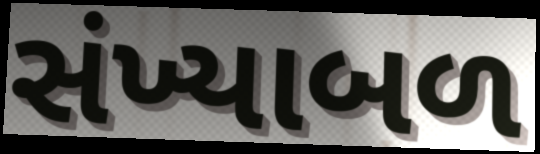
સંખ્યાબળ